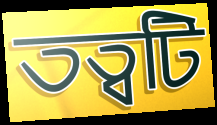
তত্বটি